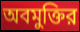
অবমুক্তির